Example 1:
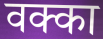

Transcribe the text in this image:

वक्का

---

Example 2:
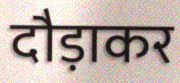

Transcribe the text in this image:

दौड़ाकर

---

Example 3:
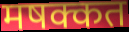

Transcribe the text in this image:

मषक्कत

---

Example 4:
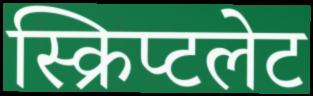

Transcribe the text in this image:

स्क्रिप्टलेट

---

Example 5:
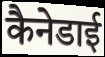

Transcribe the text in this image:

कैनेडाई